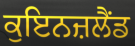
ਕੁਇਨਜ਼ਲੈਂਡ